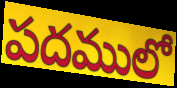
పదములో